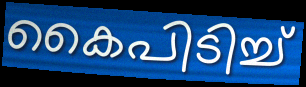
കൈപിടിച്ച്